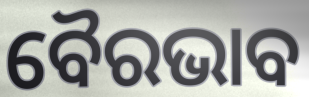
ବୈରଭାବ